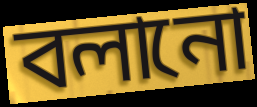
বলানো